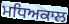
ਮਧਿਅਕਾਲ